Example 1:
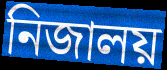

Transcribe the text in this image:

নিজালয়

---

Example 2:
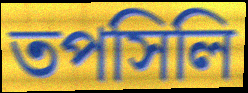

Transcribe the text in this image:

তপসিলি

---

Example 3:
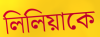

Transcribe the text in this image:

লিলিয়াকে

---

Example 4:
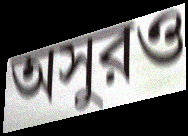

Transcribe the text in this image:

অসুরও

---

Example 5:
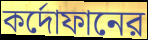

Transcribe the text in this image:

কর্দোফানের